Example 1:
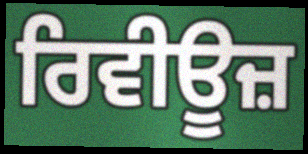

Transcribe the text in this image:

ਰਿਵੀਊਜ਼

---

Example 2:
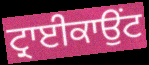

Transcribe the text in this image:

ਟ੍ਰਾਈਕਾਉਂਟ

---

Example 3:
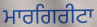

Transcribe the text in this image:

ਮਾਰਗਿਰੀਟਾ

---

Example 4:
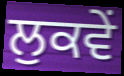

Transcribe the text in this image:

ਲੁਕਵੇਂ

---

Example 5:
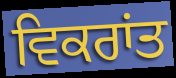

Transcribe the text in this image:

ਵਿਕਰਾਂਤ